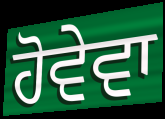
ਹੋਵੇਵਾ